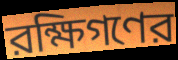
রক্ষিগণের